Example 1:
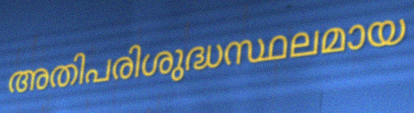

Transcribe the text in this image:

അതിപരിശുദ്ധസ്ഥലമായ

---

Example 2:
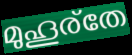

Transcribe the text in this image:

മുഹൂര്തേ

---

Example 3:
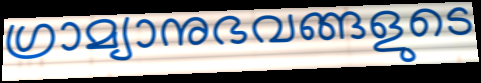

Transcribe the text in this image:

ഗ്രാമ്യാനുഭവങ്ങളുടെ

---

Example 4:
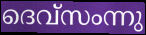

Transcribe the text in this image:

ദെവ്സംന്നു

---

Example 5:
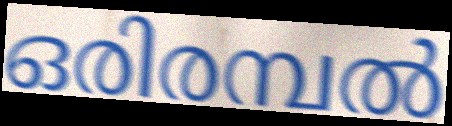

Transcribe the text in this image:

ഒരിരമ്പൽ